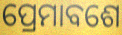
ପ୍ରେମାବଶେ